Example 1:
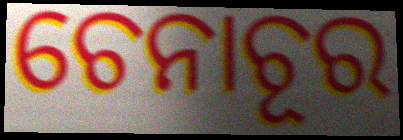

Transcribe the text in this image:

ଚେନାଚୂର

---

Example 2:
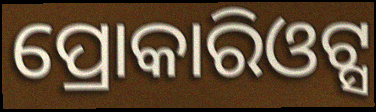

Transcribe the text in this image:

ପ୍ରୋକାରିଓଟ୍ସ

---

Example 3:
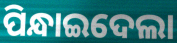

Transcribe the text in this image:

ପିନ୍ଧାଇଦେଲା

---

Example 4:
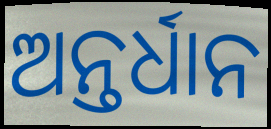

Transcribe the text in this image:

ଅନ୍ତର୍ଧାନ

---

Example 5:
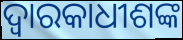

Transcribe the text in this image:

ଦ୍ୱାରକାଧୀଶଙ୍କ